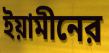
ইয়ামীনের